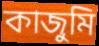
কাজুমি